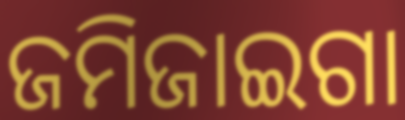
ଜମିଜାଇଗା